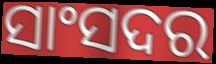
ସାଂସଦର